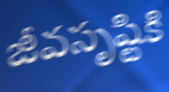
జీవసృష్టికి